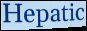
Hepatic